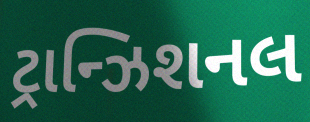
ટ્રાન્ઝિશનલ